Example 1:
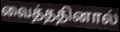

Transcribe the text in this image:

வைத்ததினால்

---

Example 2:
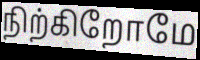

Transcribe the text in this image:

நிற்கிறோமே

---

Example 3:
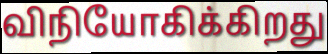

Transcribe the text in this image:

விநியோகிக்கிறது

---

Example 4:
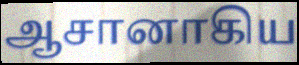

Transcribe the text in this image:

ஆசானாகிய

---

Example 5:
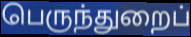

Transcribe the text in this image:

பெருந்துறைப்